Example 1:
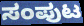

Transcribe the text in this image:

ಸಂಪುಟ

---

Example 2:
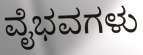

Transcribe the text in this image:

ವೈಭವಗಳು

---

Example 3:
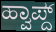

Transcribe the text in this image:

ಹ್ವಾಪ್ದ್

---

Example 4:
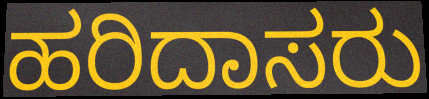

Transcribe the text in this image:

ಹರಿದಾಸರು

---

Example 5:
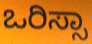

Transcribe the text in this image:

ಒರಿಸ್ಸಾ